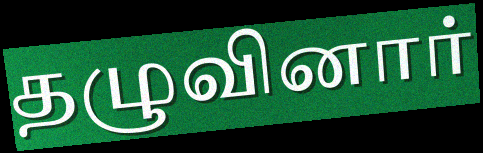
தழுவினார்